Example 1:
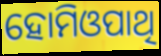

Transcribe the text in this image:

ହୋମିଓପାଥି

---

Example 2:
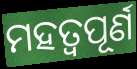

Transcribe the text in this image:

ମହତ୍ୱପୂର୍ଣ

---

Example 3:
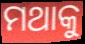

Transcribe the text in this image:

ମଥାକୁ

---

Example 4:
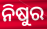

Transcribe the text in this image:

ନିଷୁର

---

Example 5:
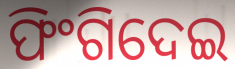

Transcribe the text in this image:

ଫିଂଗିଦେଇ